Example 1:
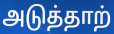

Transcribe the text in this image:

அடுத்தாற்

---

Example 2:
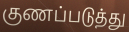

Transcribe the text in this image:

குணப்படுத்து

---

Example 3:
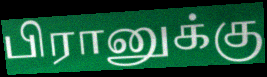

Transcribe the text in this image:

பிரானுக்கு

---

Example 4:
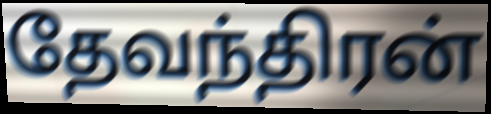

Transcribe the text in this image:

தேவந்திரன்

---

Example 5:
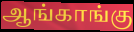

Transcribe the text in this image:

ஆங்காங்கு